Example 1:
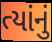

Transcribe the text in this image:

ત્યાંનું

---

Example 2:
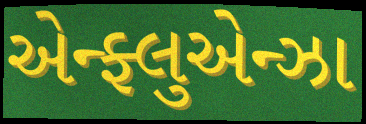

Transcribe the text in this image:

એન્ફ્લુએન્ઝા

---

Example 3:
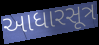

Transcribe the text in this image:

આધારસૂત્ર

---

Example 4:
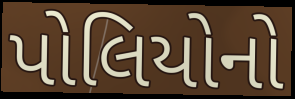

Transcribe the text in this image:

પોલિયોનો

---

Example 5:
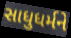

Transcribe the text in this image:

સાધુધર્મને